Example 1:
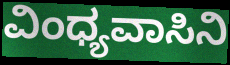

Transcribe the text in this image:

ವಿಂಧ್ಯವಾಸಿನಿ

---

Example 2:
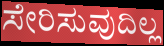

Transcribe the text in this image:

ಸೇರಿಸುವುದಿಲ್ಲ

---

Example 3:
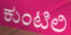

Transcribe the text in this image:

ಕುಂಟಿಲಿ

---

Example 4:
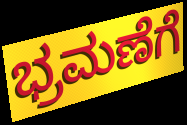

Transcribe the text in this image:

ಭ್ರಮಣೆಗೆ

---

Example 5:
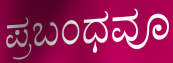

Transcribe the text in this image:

ಪ್ರಬಂಧವೂ